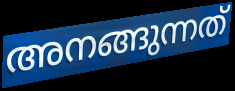
അനങ്ങുന്നത്